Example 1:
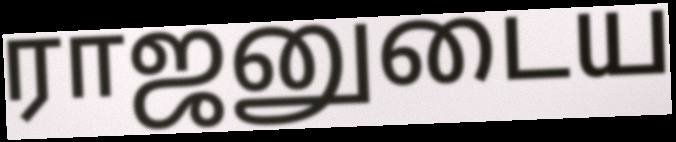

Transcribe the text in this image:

ராஜனுடைய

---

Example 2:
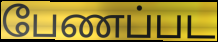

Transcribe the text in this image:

பேணப்பட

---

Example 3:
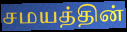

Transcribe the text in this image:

சமயத்தின்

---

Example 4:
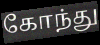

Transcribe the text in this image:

கோந்து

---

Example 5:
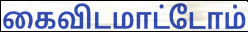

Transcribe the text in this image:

கைவிடமாட்டோம்